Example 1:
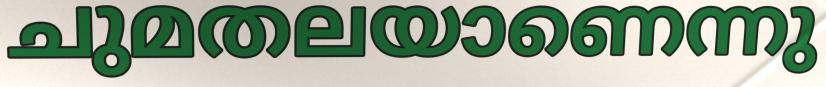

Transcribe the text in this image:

ചുമതലയാണെന്നു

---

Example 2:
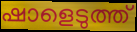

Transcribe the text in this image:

ഷാളെടുത്ത്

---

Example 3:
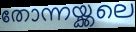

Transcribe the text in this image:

തോന്നയ്ക്കലെ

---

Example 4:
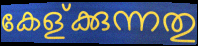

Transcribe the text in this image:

കേള്ക്കുന്നതു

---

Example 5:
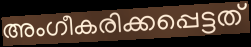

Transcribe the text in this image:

അംഗീകരിക്കപ്പെട്ടത്